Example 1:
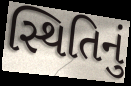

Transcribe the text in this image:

સ્થિતિનું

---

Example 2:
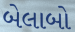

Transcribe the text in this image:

બેલાબો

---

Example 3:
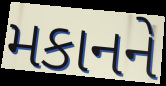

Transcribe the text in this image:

મકાનને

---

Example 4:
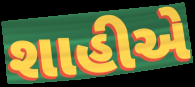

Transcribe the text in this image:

શાહીએ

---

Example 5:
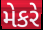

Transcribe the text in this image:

મેકરે